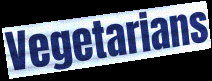
Vegetarians